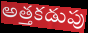
అత్తకడుపు